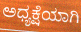
ಅಧ್ಯಕ್ಷೆಯಾಗಿ